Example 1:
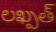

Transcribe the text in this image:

లఖ్పత్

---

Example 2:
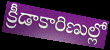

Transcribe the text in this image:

క్రీడాకారిణుల్లో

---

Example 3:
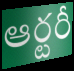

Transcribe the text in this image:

ఆర్టరీ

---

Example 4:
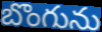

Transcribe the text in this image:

బొంగును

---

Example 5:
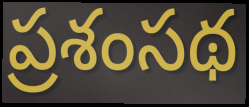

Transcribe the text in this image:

ప్రశంసథ